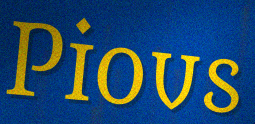
Pious